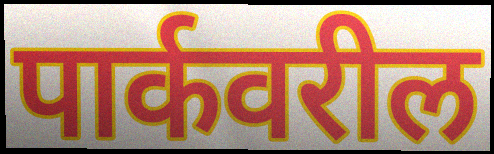
पार्कवरील